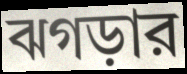
ঝগড়ার